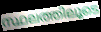
സ്ഥലത്തിലൂടെ